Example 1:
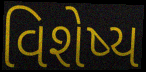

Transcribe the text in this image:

વિશેષ્ય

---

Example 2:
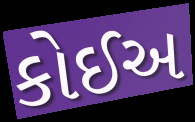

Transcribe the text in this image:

કોઈઅ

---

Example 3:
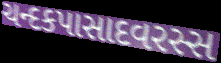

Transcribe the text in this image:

ચન્દકપાસાદવરસ્સ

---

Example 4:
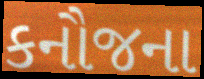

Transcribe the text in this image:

કનૌજના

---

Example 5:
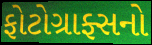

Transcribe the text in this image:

ફોટોગ્રાફ્સનો